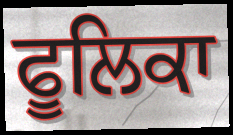
ਫੂਲਿਕਾ